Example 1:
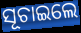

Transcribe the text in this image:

ସୂଚାଇଲେ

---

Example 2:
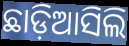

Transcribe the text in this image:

ଛାଡ଼ିଆସିଲି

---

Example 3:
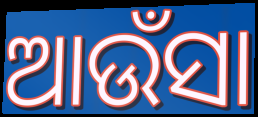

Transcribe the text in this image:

ଆଉଁସା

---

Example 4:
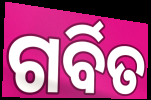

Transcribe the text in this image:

ଗର୍ବିତ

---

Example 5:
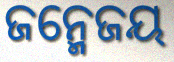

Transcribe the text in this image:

ଜନ୍ମେଜୟ